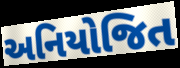
અનિયોજિત